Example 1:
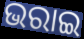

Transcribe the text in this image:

ଭରାଇ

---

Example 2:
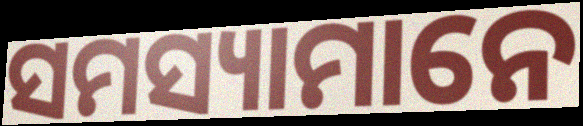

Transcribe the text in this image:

ସମସ୍ୟାମାନେ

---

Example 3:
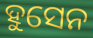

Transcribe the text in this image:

ହୁସେନ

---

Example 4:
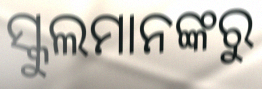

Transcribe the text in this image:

ସ୍କୁଲମାନଙ୍କରୁ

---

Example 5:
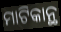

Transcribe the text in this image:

ମାଟିକାନ୍ଥ